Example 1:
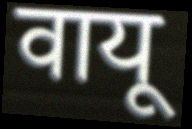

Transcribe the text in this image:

वायू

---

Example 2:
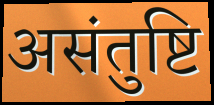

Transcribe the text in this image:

असंतुष्टि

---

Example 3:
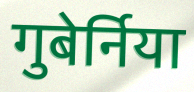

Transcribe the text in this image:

गुबेर्निया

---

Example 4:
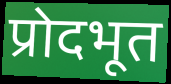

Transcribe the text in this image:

प्रोदभूत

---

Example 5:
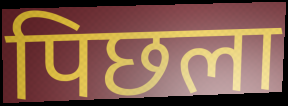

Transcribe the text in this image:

पिछला